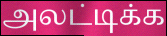
அலட்டிக்க